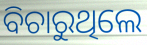
ବିଚାରୁଥିଲେ